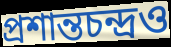
প্রশান্তচন্দ্রও